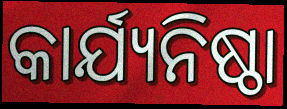
କାର୍ଯ୍ୟନିଷ୍ଠା